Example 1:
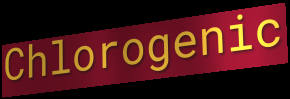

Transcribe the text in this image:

Chlorogenic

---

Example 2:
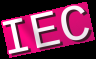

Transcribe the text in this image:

IEC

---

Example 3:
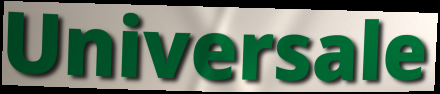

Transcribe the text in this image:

Universale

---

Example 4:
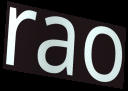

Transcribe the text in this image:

rao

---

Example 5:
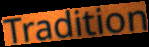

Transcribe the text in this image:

Tradition